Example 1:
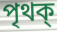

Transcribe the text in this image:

পৃথক্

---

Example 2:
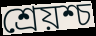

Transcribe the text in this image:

শ্রেয়শ্চ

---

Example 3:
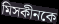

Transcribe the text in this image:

মিসকীনকে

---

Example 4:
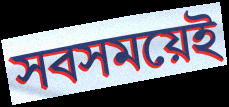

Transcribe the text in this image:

সবসময়েই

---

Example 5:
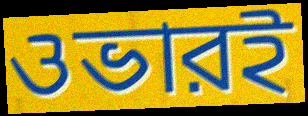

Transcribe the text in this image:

ওভারই